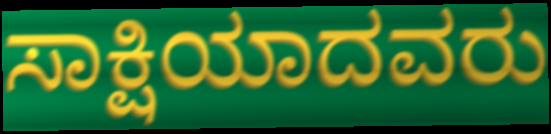
ಸಾಕ್ಷಿಯಾದವರು